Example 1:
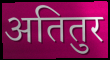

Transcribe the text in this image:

अतितुर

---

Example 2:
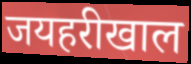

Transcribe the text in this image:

जयहरीखाल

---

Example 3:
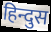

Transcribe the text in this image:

हिन्दुस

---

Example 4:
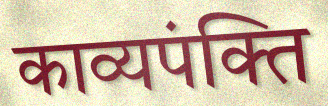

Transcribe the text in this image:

काव्यपंक्ति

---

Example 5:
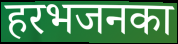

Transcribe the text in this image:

हरभजनका